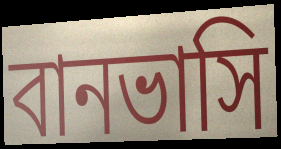
বানভাসি